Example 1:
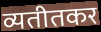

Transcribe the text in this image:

व्यतीतकर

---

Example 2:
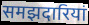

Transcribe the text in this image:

समझदारियां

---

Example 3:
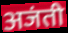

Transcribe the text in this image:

अजंती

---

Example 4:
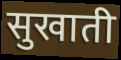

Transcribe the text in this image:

सुखाती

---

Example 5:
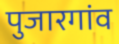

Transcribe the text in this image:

पुजारगांव